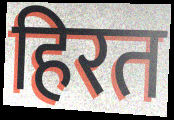
हिरत